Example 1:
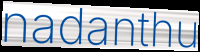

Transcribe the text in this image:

nadanthu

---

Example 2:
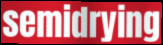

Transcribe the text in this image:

semidrying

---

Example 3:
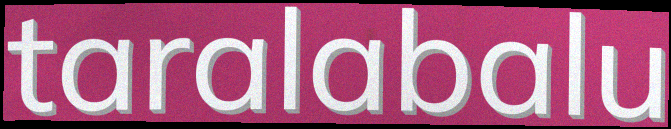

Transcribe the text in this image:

taralabalu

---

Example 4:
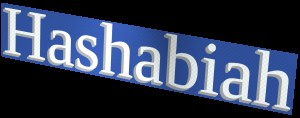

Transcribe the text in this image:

Hashabiah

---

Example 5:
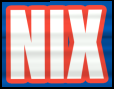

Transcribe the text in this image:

NIX